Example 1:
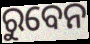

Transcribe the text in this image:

ରୁବେନ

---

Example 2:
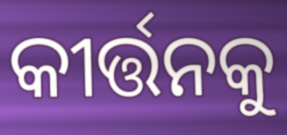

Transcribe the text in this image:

କୀର୍ତ୍ତନକୁ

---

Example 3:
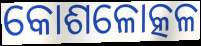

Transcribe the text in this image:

କୋଶଳୋତ୍କଳ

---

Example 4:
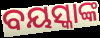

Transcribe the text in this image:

ବୟସ୍କାଙ୍କ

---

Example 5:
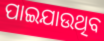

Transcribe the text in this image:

ପାଇଯାଉଥିବ